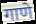
गाणे